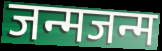
जन्मजन्म